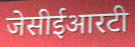
जेसीईआरटी